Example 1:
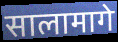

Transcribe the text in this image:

सालामागे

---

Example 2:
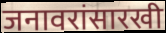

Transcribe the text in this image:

जनावरांसारखी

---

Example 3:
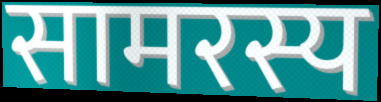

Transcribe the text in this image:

सामरस्य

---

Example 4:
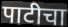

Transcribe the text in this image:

पाटीचा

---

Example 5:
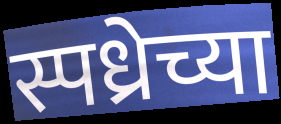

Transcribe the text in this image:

स्पध्रेच्या